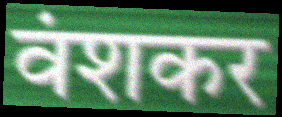
वंशकर